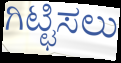
ಗಿಟ್ಟಿಸಲು